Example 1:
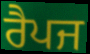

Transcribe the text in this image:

ਰੈਪਜ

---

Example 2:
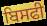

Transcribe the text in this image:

ਬਿਸਫੀ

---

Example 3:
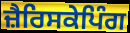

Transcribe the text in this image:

ਜ਼ੈਰਿਸਕੇਪਿੰਗ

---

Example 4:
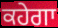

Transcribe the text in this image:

ਕਹੇਗਾ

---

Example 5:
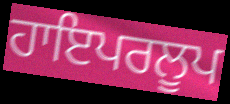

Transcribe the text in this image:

ਹਾਇਪਰਲੂਪ